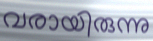
വരായിരുന്നു